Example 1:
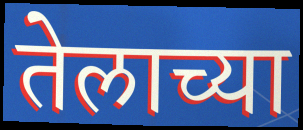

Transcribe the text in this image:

तेलाच्या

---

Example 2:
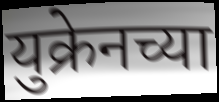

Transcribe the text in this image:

युक्रेनच्या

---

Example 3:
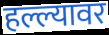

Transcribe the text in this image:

हल्ल्यावर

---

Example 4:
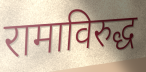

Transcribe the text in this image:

रामाविरुद्ध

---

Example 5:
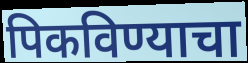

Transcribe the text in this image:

पिकविण्याचा